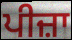
ਪੀਜ਼ਾ